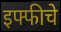
इफ्फीचे